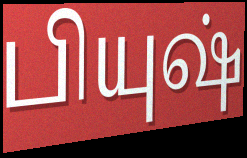
பியுஷ்